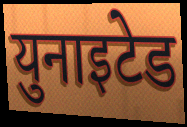
युनाइटेड